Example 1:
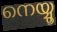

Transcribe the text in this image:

നെയ്യൂ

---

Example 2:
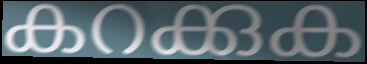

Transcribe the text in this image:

കറക്കുക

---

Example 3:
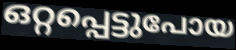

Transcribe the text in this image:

ഒറ്റപ്പെട്ടുപോയ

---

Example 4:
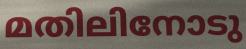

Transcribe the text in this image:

മതിലിനോടു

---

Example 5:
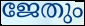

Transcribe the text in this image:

ജേതും